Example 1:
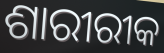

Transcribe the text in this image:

ଶାରୀରୀକ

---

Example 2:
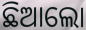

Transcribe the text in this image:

ଛିଆଲୋ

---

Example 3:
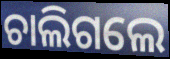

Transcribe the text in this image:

ଚାଲିଗଲେ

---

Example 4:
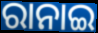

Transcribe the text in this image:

ରାନାଇ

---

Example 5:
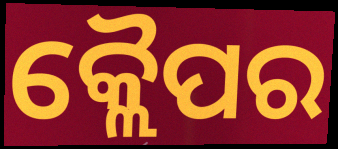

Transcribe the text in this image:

କ୍ଲୈପର